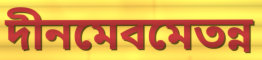
দীনমেবমেতন্ন